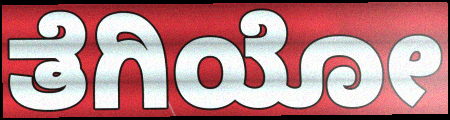
ತೆಗಿಯೋ